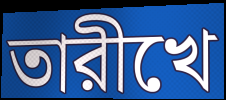
তারীখে